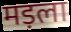
मड़ला